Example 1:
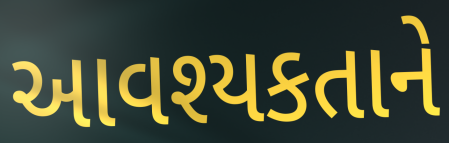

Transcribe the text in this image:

આવશ્યકતાને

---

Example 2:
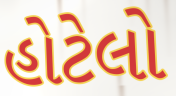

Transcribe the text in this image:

હોટેલો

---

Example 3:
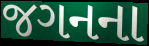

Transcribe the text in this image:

જગનના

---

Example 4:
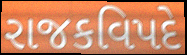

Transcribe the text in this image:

રાજકવિપદે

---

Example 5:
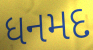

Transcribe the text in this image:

ધનમદ